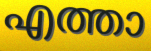
എത്താ